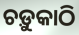
ଚଡ଼ୁକାଠି